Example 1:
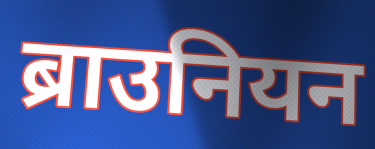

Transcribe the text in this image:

ब्राउनियन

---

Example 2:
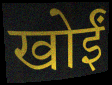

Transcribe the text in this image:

खोईं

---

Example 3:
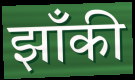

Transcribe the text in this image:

झाँकी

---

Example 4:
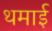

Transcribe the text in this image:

थमाई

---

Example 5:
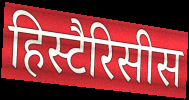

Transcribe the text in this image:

हिस्टैरिसीस